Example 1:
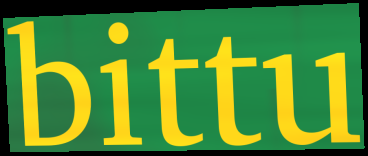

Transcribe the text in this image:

bittu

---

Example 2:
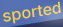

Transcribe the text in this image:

sported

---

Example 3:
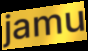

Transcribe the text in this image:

jamu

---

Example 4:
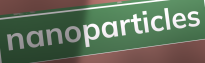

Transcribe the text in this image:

nanoparticles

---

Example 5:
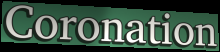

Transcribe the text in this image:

Coronation